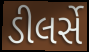
ડીલર્સે